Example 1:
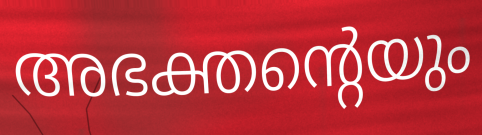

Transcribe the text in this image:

അഭക്തന്റെയും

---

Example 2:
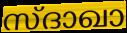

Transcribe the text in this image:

സ്ദാഖാ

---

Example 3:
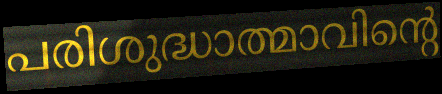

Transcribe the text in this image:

പരിശുദ്ധാത്മാവിന്റെ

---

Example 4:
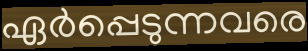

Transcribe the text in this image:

ഏർപ്പെടുന്നവരെ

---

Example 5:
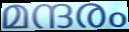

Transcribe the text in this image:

മന്ദരം